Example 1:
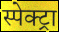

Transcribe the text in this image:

स्पेक्ट्रा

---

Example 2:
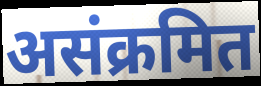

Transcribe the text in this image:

असंक्रमित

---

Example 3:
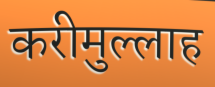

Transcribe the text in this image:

करीमुल्लाह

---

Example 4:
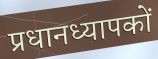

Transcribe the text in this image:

प्रधानध्यापकों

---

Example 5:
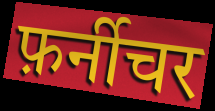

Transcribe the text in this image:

फ़र्नीचर